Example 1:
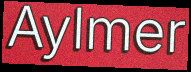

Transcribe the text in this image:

Aylmer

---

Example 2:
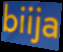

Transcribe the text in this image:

biija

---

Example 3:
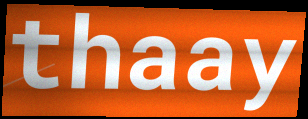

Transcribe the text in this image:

thaay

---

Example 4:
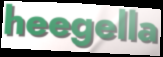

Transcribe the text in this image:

heegella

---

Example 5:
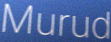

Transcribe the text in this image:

Murud